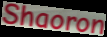
Shaoron